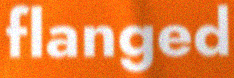
flanged